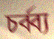
চর্ব্ব্য